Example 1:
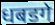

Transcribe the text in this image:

धबडगे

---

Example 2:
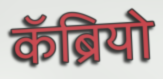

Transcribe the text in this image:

कॅब्रियो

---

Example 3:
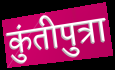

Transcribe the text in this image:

कुंतीपुत्रा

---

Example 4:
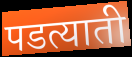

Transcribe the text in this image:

पडत्याती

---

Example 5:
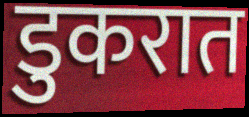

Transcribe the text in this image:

डुकरात